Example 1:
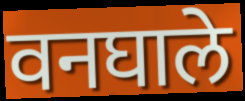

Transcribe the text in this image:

वनघाले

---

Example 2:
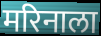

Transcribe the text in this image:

मरिनाला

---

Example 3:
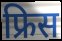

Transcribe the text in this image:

फ्रिस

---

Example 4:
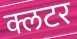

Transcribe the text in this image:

क्लटर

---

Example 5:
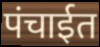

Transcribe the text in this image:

पंचाईत